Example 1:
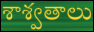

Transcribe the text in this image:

శాశ్వతాలు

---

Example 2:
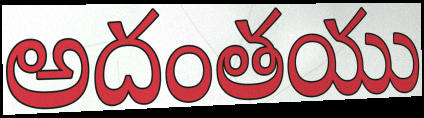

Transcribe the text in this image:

అదంతయు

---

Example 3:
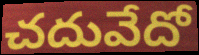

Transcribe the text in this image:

చదువేదో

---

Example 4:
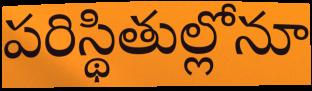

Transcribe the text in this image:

పరిస్థితుల్లోనూ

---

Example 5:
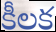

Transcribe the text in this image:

కీలక